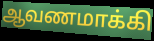
ஆவணமாக்கி